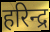
हरिन्द्र